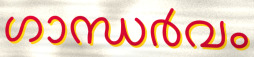
ഗാന്ധർവം